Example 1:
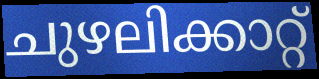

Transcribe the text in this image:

ചുഴലിക്കാറ്റ്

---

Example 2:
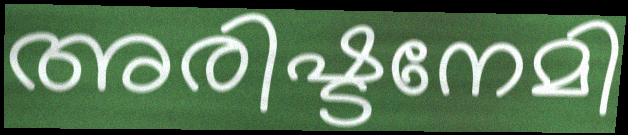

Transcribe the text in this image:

അരിഷ്ടനേമി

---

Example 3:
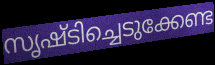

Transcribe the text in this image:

സൃഷ്ടിച്ചെടുക്കേണ്ട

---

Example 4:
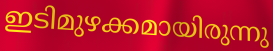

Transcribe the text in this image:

ഇടിമുഴക്കമായിരുന്നു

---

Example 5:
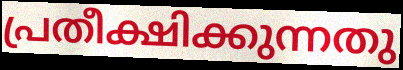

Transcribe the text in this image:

പ്രതീക്ഷിക്കുന്നതു